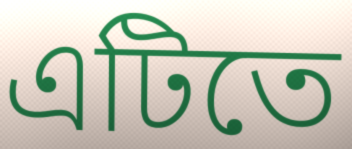
এটিতে